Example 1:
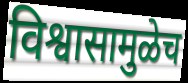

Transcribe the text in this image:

विश्वासामुळेच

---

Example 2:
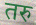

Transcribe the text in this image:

तरु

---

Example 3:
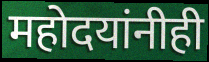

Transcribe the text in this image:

महोदयांनीही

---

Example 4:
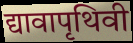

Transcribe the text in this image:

द्यावापृथिवी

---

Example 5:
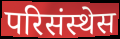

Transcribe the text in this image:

परिसंस्थेस